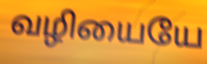
வழியையே